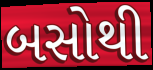
બસોથી